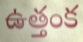
ఉత్తంక